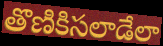
తొణికిసలాడేలా